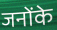
जनोंके